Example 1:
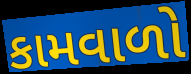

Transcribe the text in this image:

કામવાળો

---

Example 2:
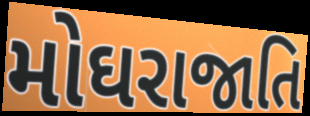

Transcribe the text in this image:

મોઘરાજાતિ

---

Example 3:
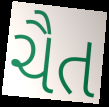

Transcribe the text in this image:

ચૈત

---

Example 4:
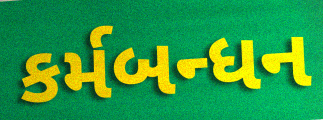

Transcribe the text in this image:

કર્મબન્ધન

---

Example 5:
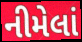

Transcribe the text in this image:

નીમેલાં